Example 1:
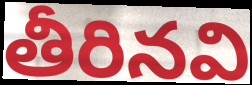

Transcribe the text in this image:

తీరినవి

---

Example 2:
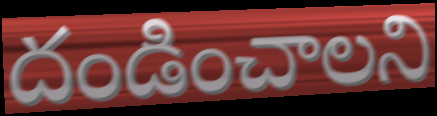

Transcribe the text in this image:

దండించాలని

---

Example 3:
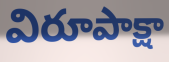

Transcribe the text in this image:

విరూపాక్షా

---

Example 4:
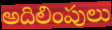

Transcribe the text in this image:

అదిలింపులు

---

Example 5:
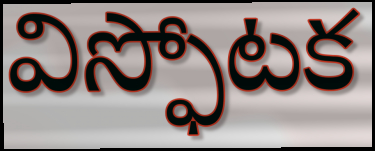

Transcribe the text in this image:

విస్ఫోటక